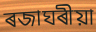
ৰজাঘৰীয়া